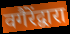
वगैरेंद्वारा